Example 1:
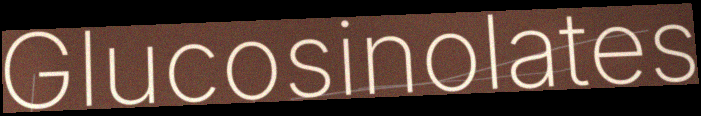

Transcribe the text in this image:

Glucosinolates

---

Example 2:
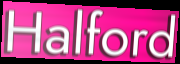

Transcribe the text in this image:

Halford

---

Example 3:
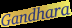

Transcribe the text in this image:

Gandhara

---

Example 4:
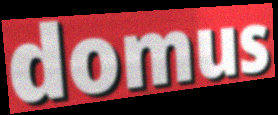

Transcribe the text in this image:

domus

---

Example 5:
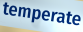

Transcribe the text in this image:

temperate